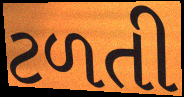
ટળતી